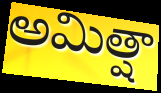
అమిత్షా